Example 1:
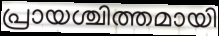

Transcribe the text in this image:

പ്രായശ്ചിത്തമായി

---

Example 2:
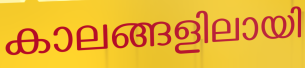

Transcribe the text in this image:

കാലങ്ങളിലായി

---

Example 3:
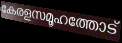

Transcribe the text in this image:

കേരളസമൂഹത്തോട്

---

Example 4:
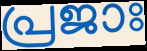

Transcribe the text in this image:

പ്രജാഃ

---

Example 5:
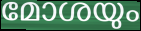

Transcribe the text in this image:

മോശയും